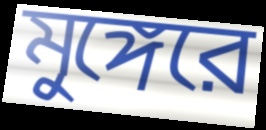
মুঙ্গেরে